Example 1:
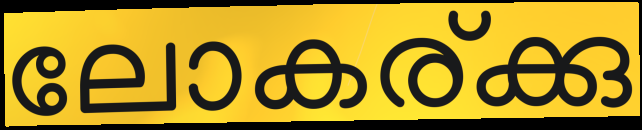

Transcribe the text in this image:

ലോകര്ക്കു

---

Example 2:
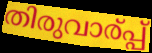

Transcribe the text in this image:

തിരുവാര്പ്പ്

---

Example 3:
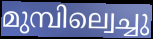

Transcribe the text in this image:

മുമ്പില്വെച്ചു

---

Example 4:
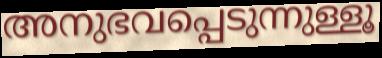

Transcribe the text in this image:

അനുഭവപ്പെടുന്നുള്ളൂ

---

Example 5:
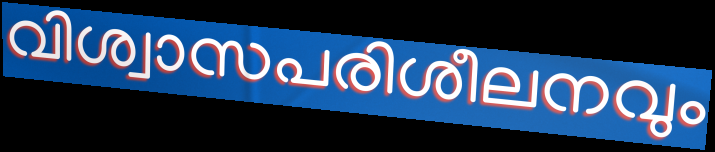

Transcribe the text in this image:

വിശ്വാസപരിശീലനവും